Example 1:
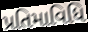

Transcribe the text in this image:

પ્રતિમાવિધિ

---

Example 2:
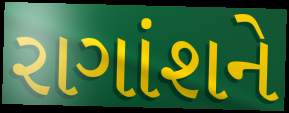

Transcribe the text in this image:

રાગાંશને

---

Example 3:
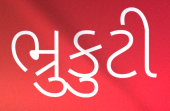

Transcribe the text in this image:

ભ્રુકુટી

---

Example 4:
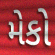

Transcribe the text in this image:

મેકો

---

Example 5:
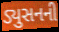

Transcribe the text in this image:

ડ્યુસનની